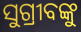
ସୁଗ୍ରୀବଙ୍କୁ